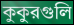
কুকুরগুলি